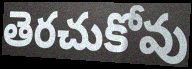
తెరచుకోవు